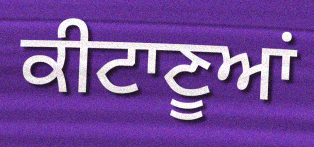
ਕੀਟਾਣੂਆਂ